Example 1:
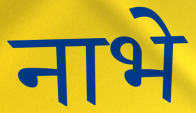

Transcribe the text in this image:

नाभे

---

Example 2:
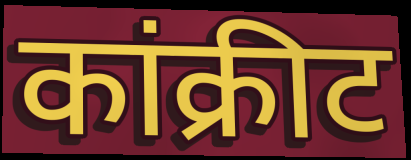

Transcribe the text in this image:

कांक्रीट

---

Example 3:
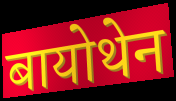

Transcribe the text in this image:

बायोथेन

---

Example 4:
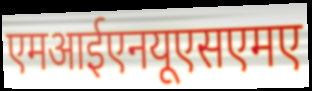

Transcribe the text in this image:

एमआईएनयूएसएमए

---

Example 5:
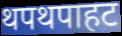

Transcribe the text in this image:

थपथपाहट